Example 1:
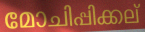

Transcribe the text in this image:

മോചിപ്പിക്കല്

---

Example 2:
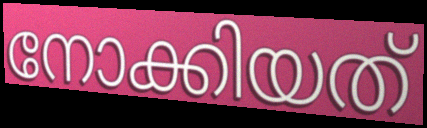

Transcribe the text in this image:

നോക്കിയത്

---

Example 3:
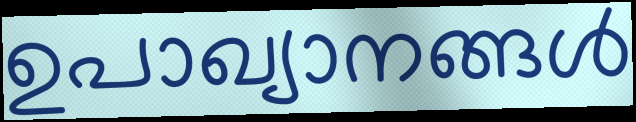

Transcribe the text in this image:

ഉപാഖ്യാനങ്ങൾ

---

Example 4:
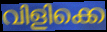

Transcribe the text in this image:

വിളിക്കെ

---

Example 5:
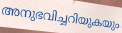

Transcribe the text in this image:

അനുഭവിച്ചറിയുകയും